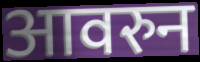
आवरुन